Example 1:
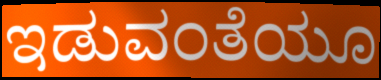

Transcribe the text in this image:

ಇಡುವಂತೆಯೂ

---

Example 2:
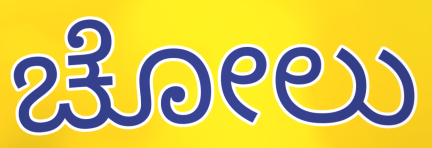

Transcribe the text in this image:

ಚೋಲು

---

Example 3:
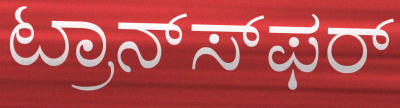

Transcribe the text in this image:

ಟ್ರಾನ್ಸ್‍ಫರ್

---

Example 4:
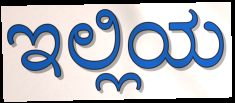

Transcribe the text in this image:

ಇಲ್ಲಿಯ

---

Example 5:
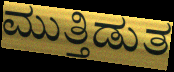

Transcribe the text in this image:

ಮುತ್ತಿಡುತ